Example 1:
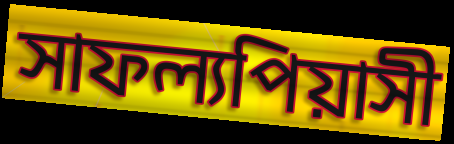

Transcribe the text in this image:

সাফল্যপিয়াসী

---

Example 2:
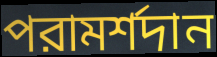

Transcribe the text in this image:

পরামর্শদান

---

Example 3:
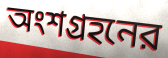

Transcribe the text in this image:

অংশগ্রহনের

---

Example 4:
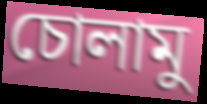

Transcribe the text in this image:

চোলামু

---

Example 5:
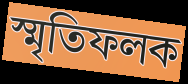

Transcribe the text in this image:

স্মৃতিফলক